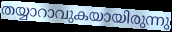
തയ്യാറാവുകയായിരുന്നു